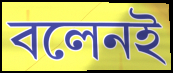
বলেনই